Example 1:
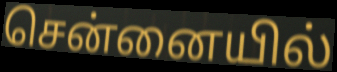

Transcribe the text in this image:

சென்னையில்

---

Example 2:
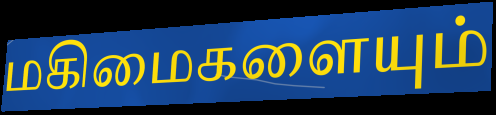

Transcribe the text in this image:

மகிமைகளையும்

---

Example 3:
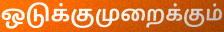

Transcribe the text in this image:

ஒடுக்குமுறைக்கும்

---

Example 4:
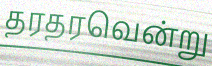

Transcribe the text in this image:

தரதரவென்று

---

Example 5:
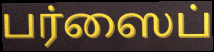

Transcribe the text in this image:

பர்ஸைப்